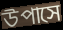
উপাসে